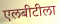
एलबीटीला